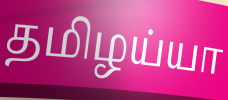
தமிழய்யா